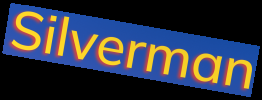
Silverman